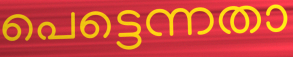
പെട്ടെന്നതാ